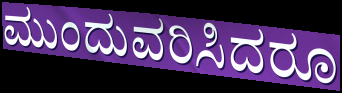
ಮುಂದುವರಿಸಿದರೂ